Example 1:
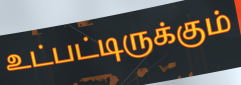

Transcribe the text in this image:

உட்பட்டிருக்கும்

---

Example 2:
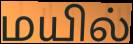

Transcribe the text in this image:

மயில்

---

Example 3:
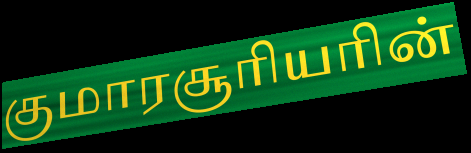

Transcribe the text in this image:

குமாரசூரியரின்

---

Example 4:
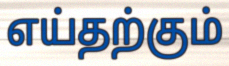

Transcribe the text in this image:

எய்தற்கும்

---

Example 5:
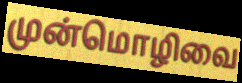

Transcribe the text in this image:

முன்மொழிவை